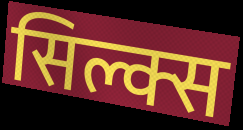
सिल्क्स